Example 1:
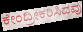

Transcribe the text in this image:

ಕೇಂದ್ರೀಕರಿಸಿದವು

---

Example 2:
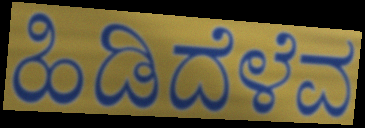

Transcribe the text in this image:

ಹಿಡಿದೆಳೆವ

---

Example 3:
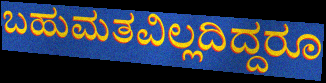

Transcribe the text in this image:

ಬಹುಮತವಿಲ್ಲದಿದ್ದರೂ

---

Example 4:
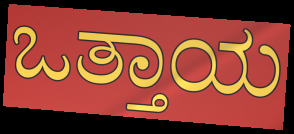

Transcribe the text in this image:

ಒತ್ತಾಯ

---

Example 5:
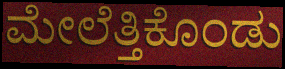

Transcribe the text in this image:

ಮೇಲೆತ್ತಿಕೊಂಡು